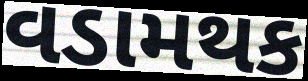
વડામથક